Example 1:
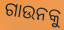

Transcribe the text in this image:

ଗାଉନକୁ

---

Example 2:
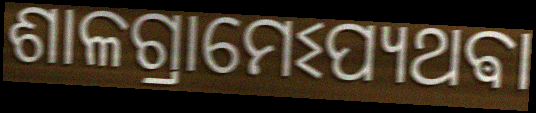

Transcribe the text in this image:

ଶାଳଗ୍ରାମେଽପ୍ଯଥଵା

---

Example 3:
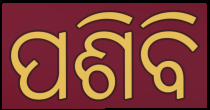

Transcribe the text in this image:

ପଶିବି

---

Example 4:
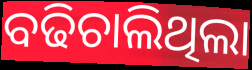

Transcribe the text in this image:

ବଢିଚାଲିଥିଲା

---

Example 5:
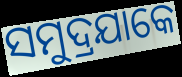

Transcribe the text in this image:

ସମୁଦ୍ରଯାକେ